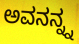
ಅವನನ್ನ್ನ